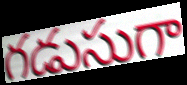
గడుసుగా